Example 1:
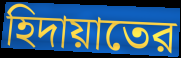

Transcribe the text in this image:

হিদায়াতের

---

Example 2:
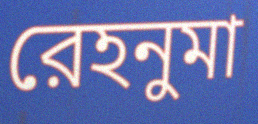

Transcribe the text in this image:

রেহনুমা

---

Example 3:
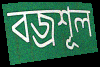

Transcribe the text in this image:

বজ্রশূল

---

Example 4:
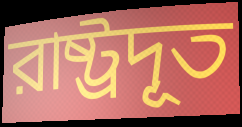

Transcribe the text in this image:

রাষ্ট্রদূত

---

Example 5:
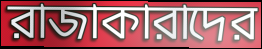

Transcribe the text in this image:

রাজাকারাদের